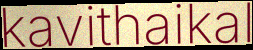
kavithaikal